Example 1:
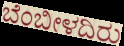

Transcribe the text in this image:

ಬೆಂಬೀಳದಿರು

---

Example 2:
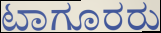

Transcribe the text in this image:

ಟಾಗೂರರು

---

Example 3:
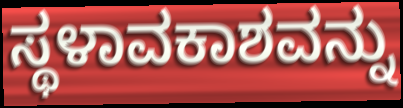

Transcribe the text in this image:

ಸ್ಥಳಾವಕಾಶವನ್ನು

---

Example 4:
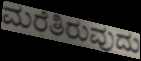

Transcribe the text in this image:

ಮರೆತಿರುವುದು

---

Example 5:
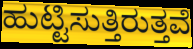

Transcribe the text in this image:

ಹುಟ್ಟಿಸುತ್ತಿರುತ್ತವೆ